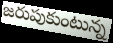
జరుపుకుంటున్న